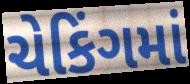
ચેકિંગમાં